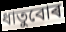
ধাতুবোৰ